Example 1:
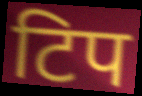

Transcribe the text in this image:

टिप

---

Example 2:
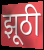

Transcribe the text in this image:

झूठी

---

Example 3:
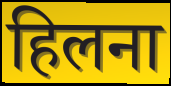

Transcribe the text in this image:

हिलना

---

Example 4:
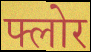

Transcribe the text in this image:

फ्लोर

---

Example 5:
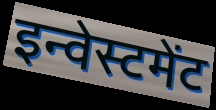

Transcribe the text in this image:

इन्वेस्टमेंट